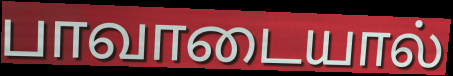
பாவாடையால்